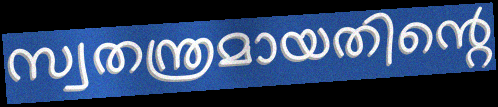
സ്വതന്ത്രമായതിന്റെ